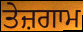
ਤੇਜ਼ਗਾਮ